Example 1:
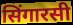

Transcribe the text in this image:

सिंगारसी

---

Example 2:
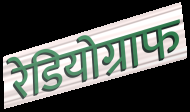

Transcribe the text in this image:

रेडियोग्राफ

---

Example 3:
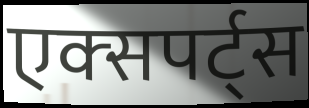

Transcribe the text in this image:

एक्‍सपर्ट्स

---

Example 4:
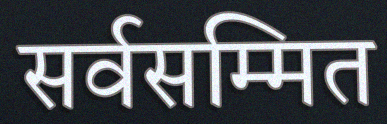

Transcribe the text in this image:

सर्वसम्मित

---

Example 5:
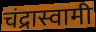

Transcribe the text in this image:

चंद्रास्वामी